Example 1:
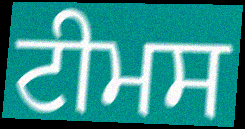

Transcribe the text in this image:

ਟੀਮਸ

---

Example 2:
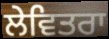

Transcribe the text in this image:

ਲੇਵਿਤਰਾ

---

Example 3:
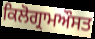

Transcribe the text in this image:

ਕਿਲੋਗ੍ਰਾਮਔਸਤ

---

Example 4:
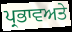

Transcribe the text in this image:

ਪ੍ਰਭਾਵਅਤੇ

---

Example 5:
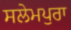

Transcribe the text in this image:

ਸਲੇਮਪੁਰਾ